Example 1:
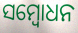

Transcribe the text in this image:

ସମ୍ବୋଧନ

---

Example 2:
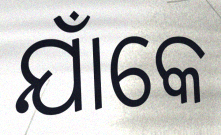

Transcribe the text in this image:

ଯାଁକେ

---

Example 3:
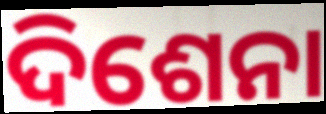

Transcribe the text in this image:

ଦିଶେନା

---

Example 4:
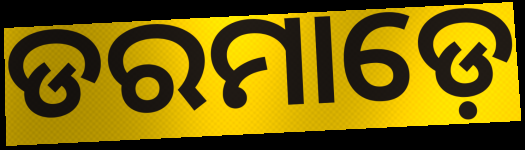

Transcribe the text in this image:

ଡରମାଡ଼େ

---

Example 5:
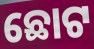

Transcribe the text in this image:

ଛୋଟ